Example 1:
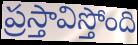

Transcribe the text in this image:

ప్రస్తావిస్తోంది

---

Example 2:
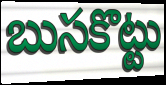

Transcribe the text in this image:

బుసకొట్టు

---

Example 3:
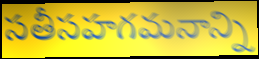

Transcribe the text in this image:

సతీసహగమనాన్ని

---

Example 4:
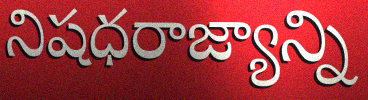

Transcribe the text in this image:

నిషధరాజ్యాన్ని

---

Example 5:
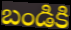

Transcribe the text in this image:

బండికి